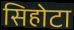
सिहोटा